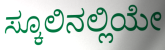
ಸ್ಕೂಲಿನಲ್ಲಿಯೇ